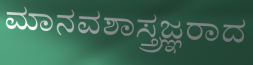
ಮಾನವಶಾಸ್ತ್ರಜ್ಞರಾದ